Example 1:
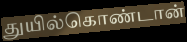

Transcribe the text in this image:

துயில்கொண்டான்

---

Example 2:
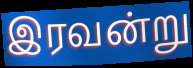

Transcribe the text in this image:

இரவன்று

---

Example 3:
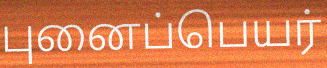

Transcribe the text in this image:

புனைப்பெயர்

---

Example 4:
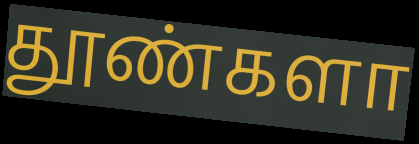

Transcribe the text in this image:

தூண்களா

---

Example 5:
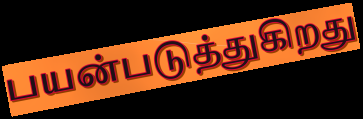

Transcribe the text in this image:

பயன்படுத்துகிறது